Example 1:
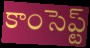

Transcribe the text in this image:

కాంసెప్ట్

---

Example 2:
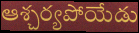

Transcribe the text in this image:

ఆశ్చర్యపోయేడు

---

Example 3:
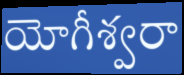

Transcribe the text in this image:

యోగీశ్వరా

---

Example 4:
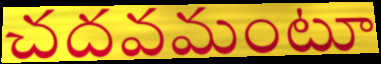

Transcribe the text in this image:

చదవమంటూ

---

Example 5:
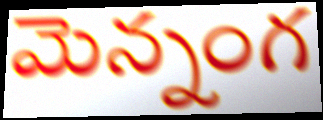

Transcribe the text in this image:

మెన్నంగ